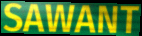
SAWANT